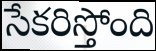
సేకరిస్తోంది